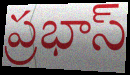
ప్రభాస్